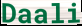
Daali